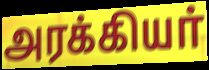
அரக்கியர்